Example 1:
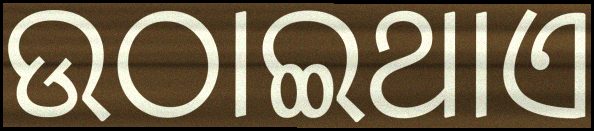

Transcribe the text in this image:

ଉଠାଇଥାଏ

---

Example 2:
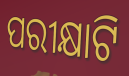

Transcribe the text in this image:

ପରୀକ୍ଷାଟି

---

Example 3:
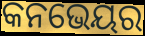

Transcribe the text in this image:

କନଭେୟର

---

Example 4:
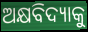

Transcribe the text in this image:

ଅକ୍ଷବିଦ୍ୟାକୁ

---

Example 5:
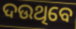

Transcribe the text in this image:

ଦଉଥିବେ